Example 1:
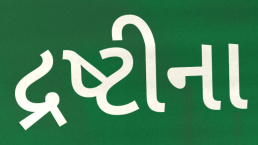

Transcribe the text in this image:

દ્રષ્ટીના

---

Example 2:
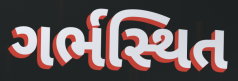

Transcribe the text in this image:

ગર્ભસ્થિત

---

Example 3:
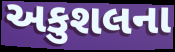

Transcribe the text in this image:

અકુશલના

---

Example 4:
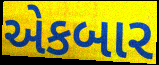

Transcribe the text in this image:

એકબાર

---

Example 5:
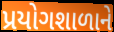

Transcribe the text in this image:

પ્રયોગશાળાને